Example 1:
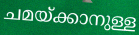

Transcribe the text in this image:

ചമയ്ക്കാനുള്ള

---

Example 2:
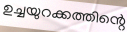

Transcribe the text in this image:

ഉച്ചയുറക്കത്തിന്റെ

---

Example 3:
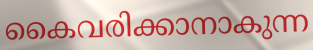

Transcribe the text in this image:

കൈവരിക്കാനാകുന്ന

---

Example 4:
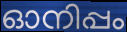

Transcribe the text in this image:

ഓനിപ്പം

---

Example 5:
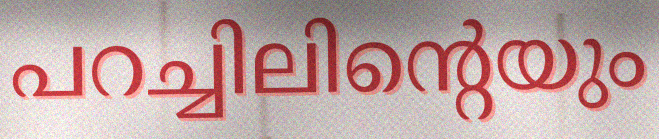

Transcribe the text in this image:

പറച്ചിലിന്റെയും